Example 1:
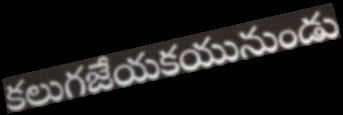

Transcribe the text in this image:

కలుగజేయకయునుండు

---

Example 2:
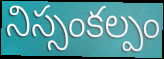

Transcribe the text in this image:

నిస్సంకల్పం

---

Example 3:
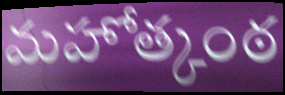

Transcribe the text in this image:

మహోత్కంఠ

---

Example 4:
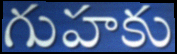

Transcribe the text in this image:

గుహకు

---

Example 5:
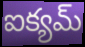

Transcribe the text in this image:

ఐక్యమ్